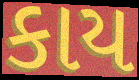
કાય